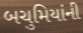
બચુમિયાંની